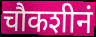
चौकशीनं